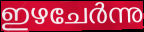
ഇഴചേർന്നു